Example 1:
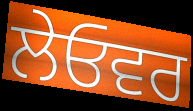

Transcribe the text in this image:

ਲੇਓਵਰ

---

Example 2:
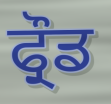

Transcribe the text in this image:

ਫ੍ਰੌਡ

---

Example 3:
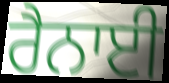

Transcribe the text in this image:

ਰੈਨਾਈ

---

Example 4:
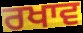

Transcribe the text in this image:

ਰਖਾਵ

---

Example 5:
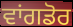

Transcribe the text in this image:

ਵਾਂਗਡੋਰ